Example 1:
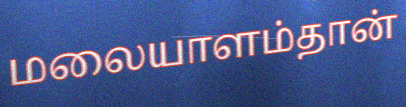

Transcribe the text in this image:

மலையாளம்தான்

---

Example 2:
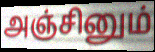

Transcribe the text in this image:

அஞ்சினும்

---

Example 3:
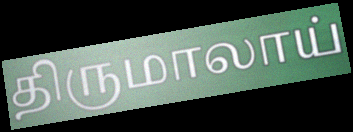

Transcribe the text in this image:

திருமாலாய்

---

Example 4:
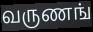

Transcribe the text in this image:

வருணங்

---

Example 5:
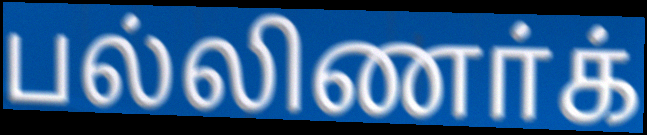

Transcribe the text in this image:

பல்லிணர்க்